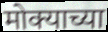
मोक्याच्या